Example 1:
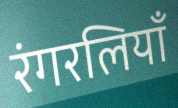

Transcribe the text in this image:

रंगरलियाँ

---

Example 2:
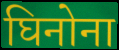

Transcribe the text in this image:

घिनोना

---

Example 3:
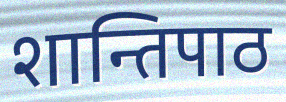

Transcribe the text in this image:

शान्तिपाठ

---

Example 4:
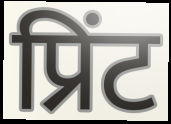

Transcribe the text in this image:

प्रिंट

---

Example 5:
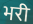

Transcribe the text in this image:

भरी